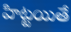
హిట్టయితే